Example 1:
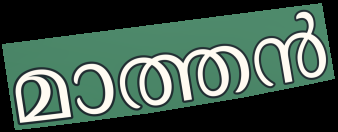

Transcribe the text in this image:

മാത്തൻ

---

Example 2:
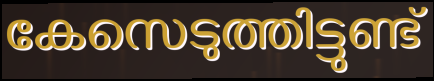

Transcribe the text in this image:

കേസെടുത്തിട്ടുണ്ട്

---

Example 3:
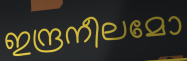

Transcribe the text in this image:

ഇന്ദ്രനീലമോ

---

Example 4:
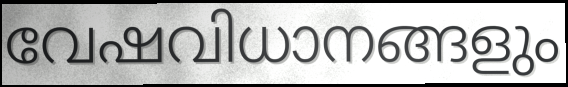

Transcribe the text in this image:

വേഷവിധാനങ്ങളും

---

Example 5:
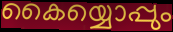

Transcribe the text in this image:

കൈയ്യൊപ്പും